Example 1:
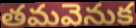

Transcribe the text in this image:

తమవెనుక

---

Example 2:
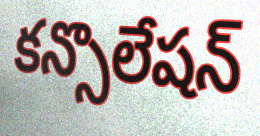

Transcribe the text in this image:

కన్సొలేషన్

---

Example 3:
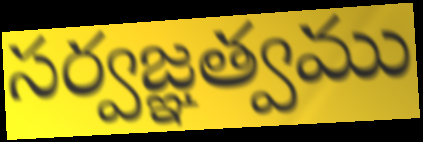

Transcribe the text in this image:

సర్వజ్ఞత్వము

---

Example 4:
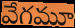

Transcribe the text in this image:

వేగమూ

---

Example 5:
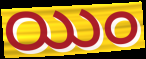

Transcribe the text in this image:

యిం